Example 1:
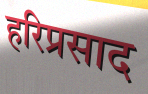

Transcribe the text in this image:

हरिप्रसाद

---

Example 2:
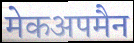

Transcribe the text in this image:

मेकअपमैन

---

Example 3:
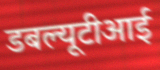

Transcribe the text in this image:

डबल्यूटीआई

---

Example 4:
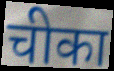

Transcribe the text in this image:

चीका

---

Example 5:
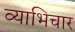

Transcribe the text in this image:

व्याभिचार